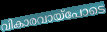
വികാരവായ്പോടെ